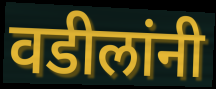
वडीलांनी